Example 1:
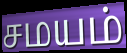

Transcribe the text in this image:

சமயம்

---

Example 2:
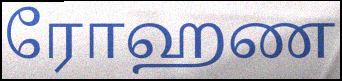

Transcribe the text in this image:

ரோஹண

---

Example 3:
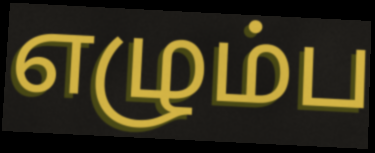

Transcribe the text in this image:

எழும்ப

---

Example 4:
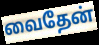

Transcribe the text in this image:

வைதேன்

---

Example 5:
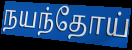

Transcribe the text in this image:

நயந்தோய்